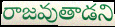
రాజవుతాడని